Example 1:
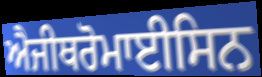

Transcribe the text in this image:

ਐਜੀਥਰੋਮਾਈਸਿਨ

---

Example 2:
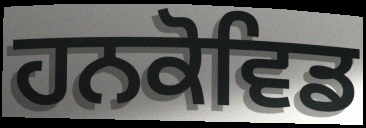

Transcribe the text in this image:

ਹਨਕੋਵਿਡ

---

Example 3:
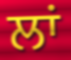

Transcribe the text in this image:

ਲਾਂ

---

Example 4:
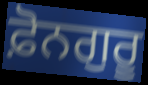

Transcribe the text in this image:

ਫ਼ੋਨਗੁਰੂ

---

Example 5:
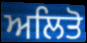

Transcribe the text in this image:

ਅਲਿਤੋ